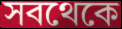
সবথেকে